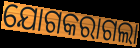
ଯୋଗକରାଗଲା